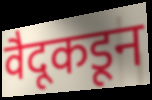
वैदूकडून